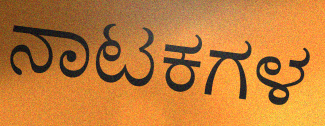
ನಾಟಕಗಳ